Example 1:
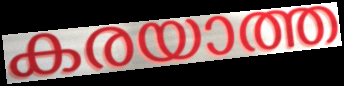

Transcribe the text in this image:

കരയാത്ത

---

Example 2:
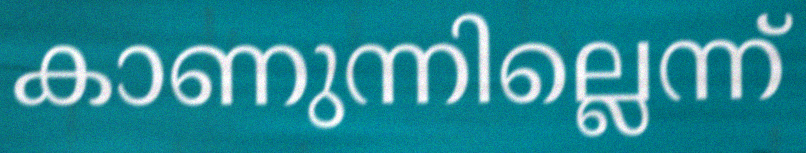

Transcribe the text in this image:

കാണുന്നില്ലെന്ന്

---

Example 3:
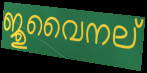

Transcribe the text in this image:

ജുവൈനല്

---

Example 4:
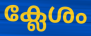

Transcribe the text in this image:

ക്ലേശം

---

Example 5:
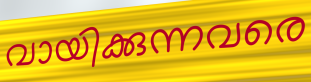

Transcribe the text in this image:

വായിക്കുന്നവരെ